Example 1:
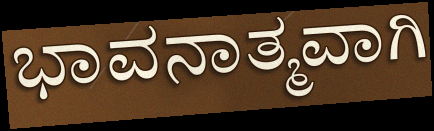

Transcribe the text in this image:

ಭಾವನಾತ್ಮವಾಗಿ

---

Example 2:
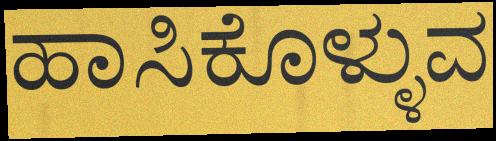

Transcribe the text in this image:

ಹಾಸಿಕೊಳ್ಳುವ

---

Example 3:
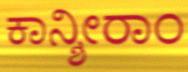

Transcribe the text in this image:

ಕಾನ್ಶೀರಾಂ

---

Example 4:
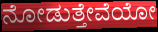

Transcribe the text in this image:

ನೋಡುತ್ತೇವೆಯೋ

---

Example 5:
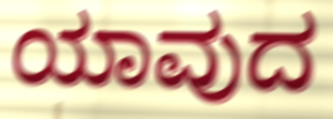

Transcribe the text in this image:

ಯಾವುದ